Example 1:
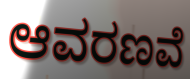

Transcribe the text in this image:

ಆವರಣವೆ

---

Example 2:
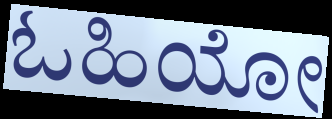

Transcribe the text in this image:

ಓಹಿಯೋ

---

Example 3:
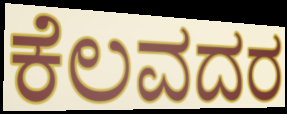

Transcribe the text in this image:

ಕೆಲವದರ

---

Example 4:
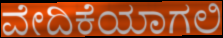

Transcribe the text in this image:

ವೇದಿಕೆಯಾಗಲಿ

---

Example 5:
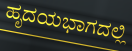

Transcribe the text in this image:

ಹೃದಯಭಾಗದಲ್ಲಿ